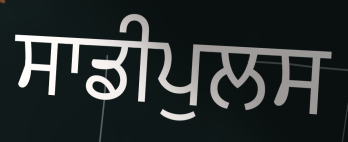
ਸਾਡੀਪੁਲਸ